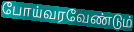
போய்வரவேண்டும்